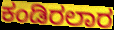
ಕಂಡಿರಲಾರ